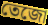
তেজো